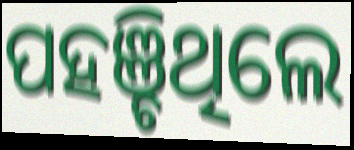
ପହଞ୍ଚିଥିଲେ